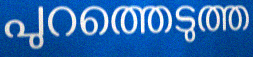
പുറത്തെടുത്ത